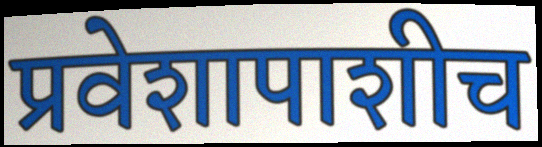
प्रवेशापाशीच